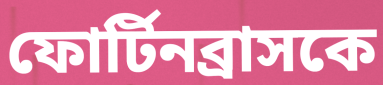
ফোর্টিনব্রাসকে